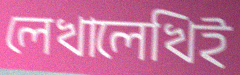
লেখালেখিই